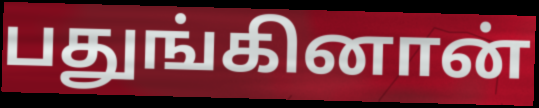
பதுங்கினான்